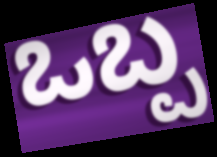
ಒಬ್ಪ